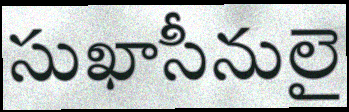
సుఖాసీనులై